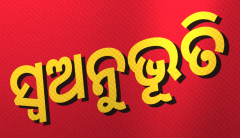
ସ୍ୱଅନୁଭୂତି